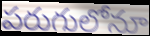
పరుగులోనూ